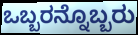
ಒಬ್ಬರನ್ನೊಬ್ಬರು